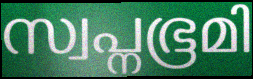
സ്വപ്നഭൂമി